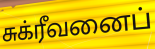
சுக்ரீவனைப்